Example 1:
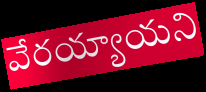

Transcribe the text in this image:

వేరయ్యాయని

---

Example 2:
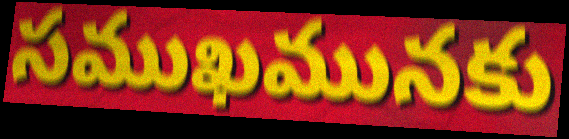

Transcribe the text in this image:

సముఖమునకు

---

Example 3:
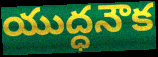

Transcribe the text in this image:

యుద్ధనౌక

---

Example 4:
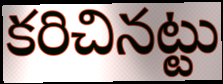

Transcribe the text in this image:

కరిచినట్టు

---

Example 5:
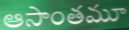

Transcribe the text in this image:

ఆసాంతమూ